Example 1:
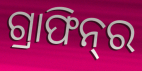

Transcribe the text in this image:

ଗ୍ରାଫିନ୍‌ର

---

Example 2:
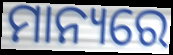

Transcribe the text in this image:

ମାନ୍ୟରେ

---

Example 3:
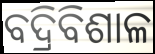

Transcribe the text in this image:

ବଦ୍ରିବିଶାଳ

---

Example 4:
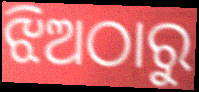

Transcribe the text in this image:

ଝିଅଠାରୁ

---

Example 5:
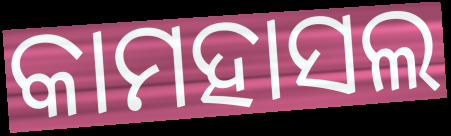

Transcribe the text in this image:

କାମହାସଲ